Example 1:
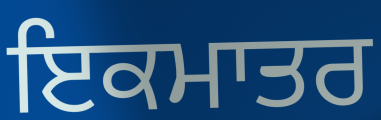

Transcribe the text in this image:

ਇਕਮਾਤਰ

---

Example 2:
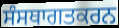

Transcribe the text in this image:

ਸੰਸਥਾਗਤਕਰਨ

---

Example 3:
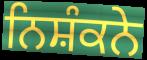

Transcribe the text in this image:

ਨਿਸ਼ੰਕਨੇ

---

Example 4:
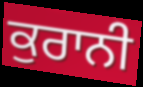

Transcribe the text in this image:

ਕੁਰਾਨੀ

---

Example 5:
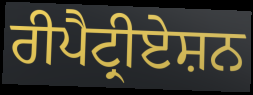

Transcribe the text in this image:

ਰੀਪੈਟ੍ਰੀਏਸ਼ਨ